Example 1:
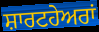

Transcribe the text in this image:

ਸ਼ਾਰਟਹੇਅਰਾਂ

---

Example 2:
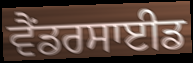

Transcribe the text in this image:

ਵੈਂਡਰਸਾਈਡ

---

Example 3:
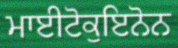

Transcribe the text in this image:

ਮਾਈਟੋਕੁਇਨੋਨ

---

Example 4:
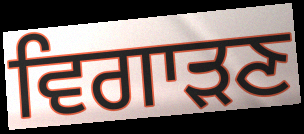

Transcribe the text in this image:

ਵਿਗਾੜਣ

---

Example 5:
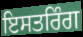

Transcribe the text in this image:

ਇਸਤਰਿੰਗ